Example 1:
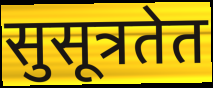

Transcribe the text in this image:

सुसूत्रतेत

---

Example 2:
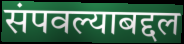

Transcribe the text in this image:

संपवल्याबद्दल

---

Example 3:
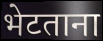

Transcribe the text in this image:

भेटताना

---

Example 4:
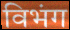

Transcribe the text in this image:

विभंग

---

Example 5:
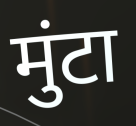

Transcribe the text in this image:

मुंटा